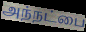
அந்நட்பை